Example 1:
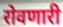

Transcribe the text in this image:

रोवणारी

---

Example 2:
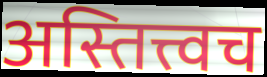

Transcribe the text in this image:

अस्तित्त्वच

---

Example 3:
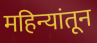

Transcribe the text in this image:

महिन्यांतून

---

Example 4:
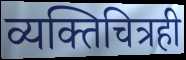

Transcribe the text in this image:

व्यक्तिचित्रही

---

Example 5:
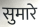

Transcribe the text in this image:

सुमारे